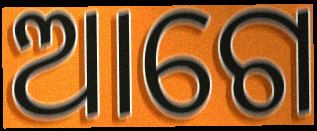
ଆଗେ